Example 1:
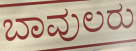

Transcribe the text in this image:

ಬಾವುಲರು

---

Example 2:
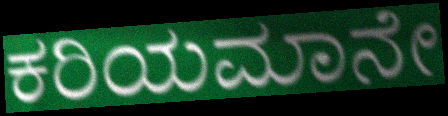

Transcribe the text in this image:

ಕರಿಯಮಾನೇ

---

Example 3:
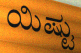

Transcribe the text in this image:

ಯಿಷ್ಟು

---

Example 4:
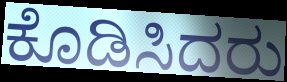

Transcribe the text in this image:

ಕೊಡಿಸಿದರು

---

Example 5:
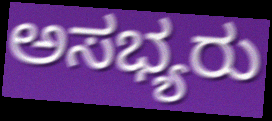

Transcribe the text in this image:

ಅಸಭ್ಯರು